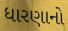
ધારણાનો